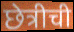
छेत्रीची